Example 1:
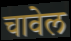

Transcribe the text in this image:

चावेल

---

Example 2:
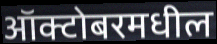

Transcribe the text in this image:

ऑक्टोबरमधील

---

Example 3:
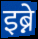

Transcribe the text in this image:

इब्ने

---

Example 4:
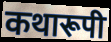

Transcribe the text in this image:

कथारूपी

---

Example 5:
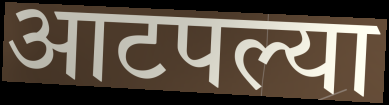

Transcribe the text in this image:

आटपल्या